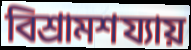
বিশ্রামশয্যায়